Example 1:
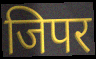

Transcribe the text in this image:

जिपर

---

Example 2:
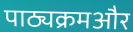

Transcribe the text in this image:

पाठ्यक्रमऔर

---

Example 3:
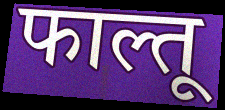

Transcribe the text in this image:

फाल्तू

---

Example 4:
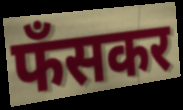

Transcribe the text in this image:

फँसकर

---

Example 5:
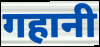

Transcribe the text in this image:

गहानी